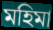
মহিমা